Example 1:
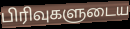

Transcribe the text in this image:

பிரிவுகளுடைய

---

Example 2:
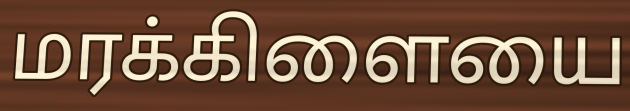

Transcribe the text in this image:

மரக்கிளையை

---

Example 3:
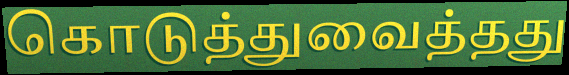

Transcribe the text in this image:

கொடுத்துவைத்தது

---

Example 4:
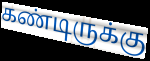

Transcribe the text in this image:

கண்டிருக்கு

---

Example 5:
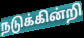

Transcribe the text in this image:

நடுக்கின்றி